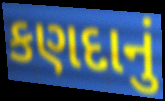
કણદાનું